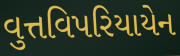
વુત્તવિપરિયાયેન